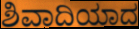
ಶಿವಾದಿಯಾದ